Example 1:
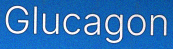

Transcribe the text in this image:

Glucagon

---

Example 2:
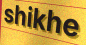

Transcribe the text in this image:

shikhe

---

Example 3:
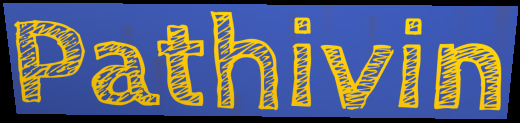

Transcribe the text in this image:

Pathivin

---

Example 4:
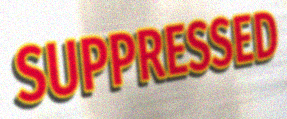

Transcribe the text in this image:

SUPPRESSED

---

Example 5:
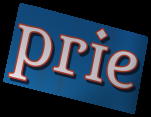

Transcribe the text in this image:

prie